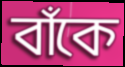
বাঁকে